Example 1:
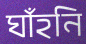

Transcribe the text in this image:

ঘাঁহনি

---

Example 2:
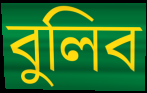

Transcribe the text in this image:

বুলিব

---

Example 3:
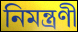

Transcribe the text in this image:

নিমন্ত্ৰণী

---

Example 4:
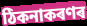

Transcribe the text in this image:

ঠিকনাকৰণৰ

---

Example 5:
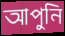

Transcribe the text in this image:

আপুনি